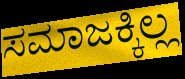
ಸಮಾಜಕ್ಕಿಲ್ಲ